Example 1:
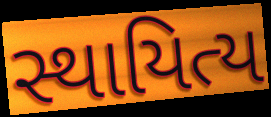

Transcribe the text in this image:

સ્થાયિત્ય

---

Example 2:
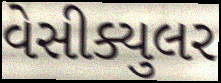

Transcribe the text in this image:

વેસીક્યુલર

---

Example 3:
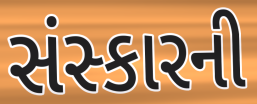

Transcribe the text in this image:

સંસ્કારની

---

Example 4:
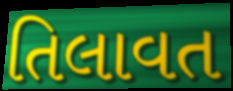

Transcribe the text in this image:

તિલાવત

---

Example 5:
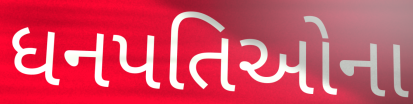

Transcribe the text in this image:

ધનપતિઓના